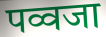
पव्वजा